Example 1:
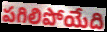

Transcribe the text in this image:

పగిలిపోయేది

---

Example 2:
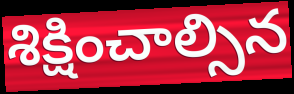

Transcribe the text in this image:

శిక్షించాల్సిన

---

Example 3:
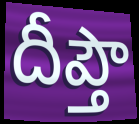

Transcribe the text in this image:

దీప్తౌ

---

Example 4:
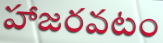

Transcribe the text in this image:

హాజరవటం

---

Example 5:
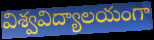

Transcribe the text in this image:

విశ్వవిద్యాలయంగా